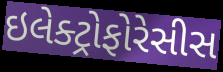
ઇલેક્ટ્રોફોરેસીસ